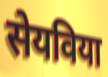
सेयविया